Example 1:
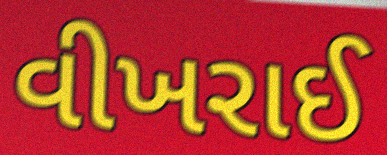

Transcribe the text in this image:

વીખરાઈ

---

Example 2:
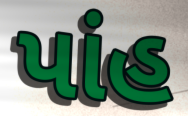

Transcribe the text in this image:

પાંહ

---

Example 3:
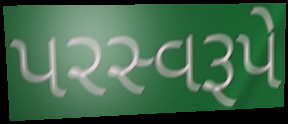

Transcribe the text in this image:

પરસ્વરૂપે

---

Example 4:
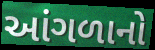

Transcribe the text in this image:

આંગળાનો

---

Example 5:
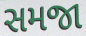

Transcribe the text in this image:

સમજા